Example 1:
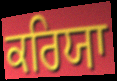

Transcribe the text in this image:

ਕਰਿਯਾ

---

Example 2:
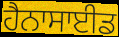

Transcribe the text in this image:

ਹੈਨਾਸਾਈਡ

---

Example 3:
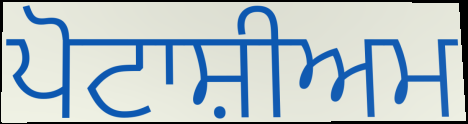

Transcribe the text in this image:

ਪੋਟਾਸ਼ੀਅਮ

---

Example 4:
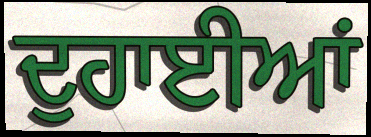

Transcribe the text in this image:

ਦੁਹਾਈਆਂ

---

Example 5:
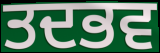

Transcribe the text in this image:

ਤਦਭਵ